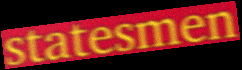
statesmen